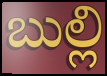
బుల్లి